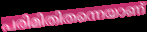
പരിമിതിതന്നെയാണ്